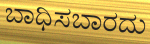
ಬಾಧಿಸಬಾರದು